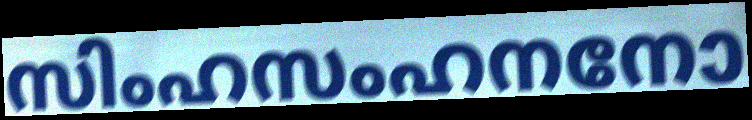
സിംഹസംഹനനോ